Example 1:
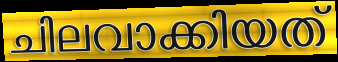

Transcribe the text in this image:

ചിലവാക്കിയത്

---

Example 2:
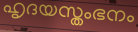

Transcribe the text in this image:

ഹൃദയസ്തംഭനം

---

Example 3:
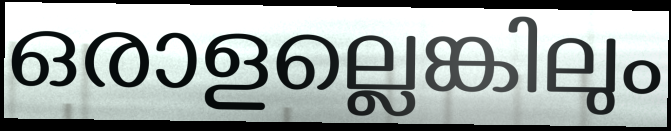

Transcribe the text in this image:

ഒരാളല്ലെങ്കിലും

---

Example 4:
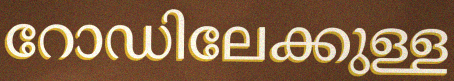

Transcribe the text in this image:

റോഡിലേക്കുള്ള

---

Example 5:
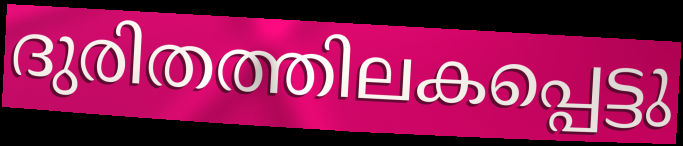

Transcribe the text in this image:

ദുരിതത്തിലകപ്പെട്ടു